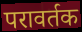
परावर्तक